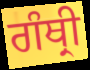
ਗੰਥ੍ਰੀ